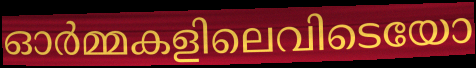
ഓർമ്മകളിലെവിടെയോ